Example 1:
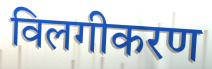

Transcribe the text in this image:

विलगीकरण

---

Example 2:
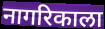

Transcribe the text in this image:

नागरिकाला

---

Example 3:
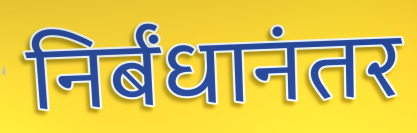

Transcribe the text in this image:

निर्बंधानंतर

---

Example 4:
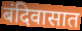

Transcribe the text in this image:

बंदिवासात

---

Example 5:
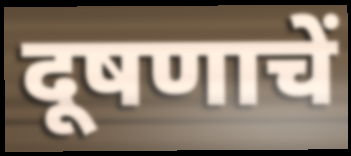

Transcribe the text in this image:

दूषणाचें